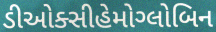
ડીઓક્સીહેમોગ્લોબિન